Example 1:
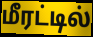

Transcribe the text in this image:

மீரட்டில்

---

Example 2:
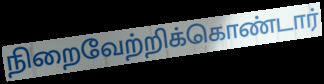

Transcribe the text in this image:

நிறைவேற்றிக்கொண்டார்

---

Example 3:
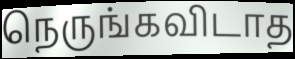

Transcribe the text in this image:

நெருங்கவிடாத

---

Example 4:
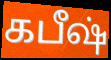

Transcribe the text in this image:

கபீஷ்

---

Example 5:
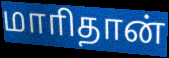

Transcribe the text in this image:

மாரிதான்